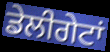
ਡੇਲੀਗੇਟਾਂ